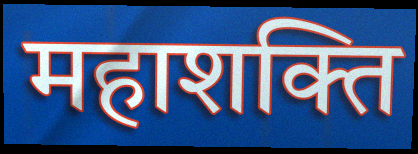
महाशक्ति